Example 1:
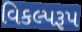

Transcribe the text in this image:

વિકલ્પરૂપ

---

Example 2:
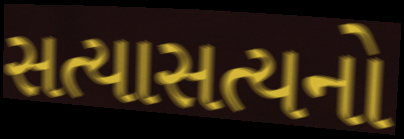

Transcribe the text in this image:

સત્યાસત્યનો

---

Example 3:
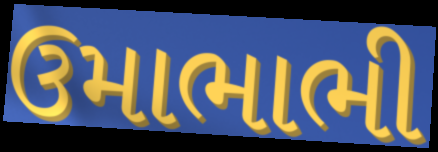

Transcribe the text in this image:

ઉમાભાભી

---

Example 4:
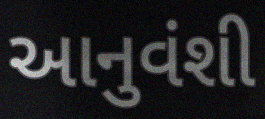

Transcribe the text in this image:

આનુવંશી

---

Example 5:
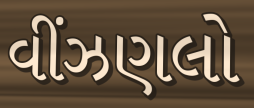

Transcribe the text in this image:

વીંઝણલો